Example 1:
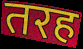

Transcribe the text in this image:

तरह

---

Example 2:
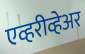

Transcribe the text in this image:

एव्हरीव्हेअर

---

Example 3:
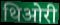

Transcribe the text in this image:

थिओरी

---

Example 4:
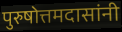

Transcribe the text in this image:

पुरुषोत्तमदासांनी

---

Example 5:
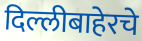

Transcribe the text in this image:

दिल्लीबाहेरचे